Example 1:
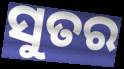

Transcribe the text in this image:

ସୁତର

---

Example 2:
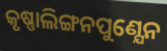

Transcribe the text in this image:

କୃଷ୍ଣାଲିଙ୍ଗନପୁଣ୍ଯେନ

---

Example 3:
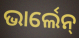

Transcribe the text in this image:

ଭାର୍ଲେନ୍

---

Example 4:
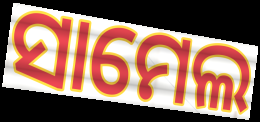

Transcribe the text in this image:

ସାମେଲ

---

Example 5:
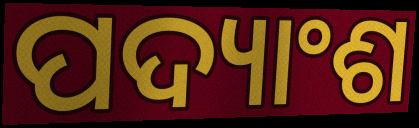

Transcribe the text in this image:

ପଦ୍ୟାଂଶ